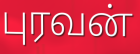
புரவன்